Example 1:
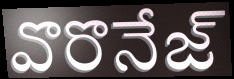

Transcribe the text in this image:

వొరొనేజ్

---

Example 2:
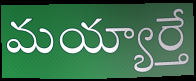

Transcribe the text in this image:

మయ్యార్తే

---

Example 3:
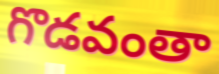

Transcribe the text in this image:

గొడవంతా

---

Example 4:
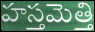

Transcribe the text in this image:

హస్తమెత్తి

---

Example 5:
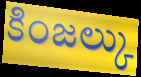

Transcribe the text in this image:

కింజల్కు